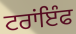
ਟਰਾਂਇੰਫ